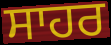
ਸਾਹਰ